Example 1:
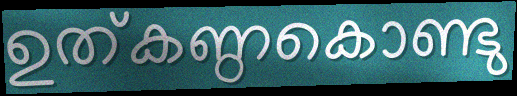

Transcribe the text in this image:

ഉത്കണ്ഠകൊണ്ടു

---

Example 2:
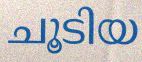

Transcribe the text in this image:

ചൂടിയ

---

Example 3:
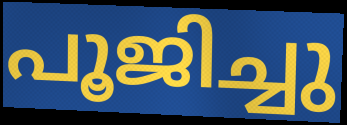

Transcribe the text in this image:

പൂജിച്ചു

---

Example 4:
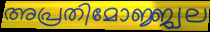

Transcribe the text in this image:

അപ്രതിമോജ്ജ്വല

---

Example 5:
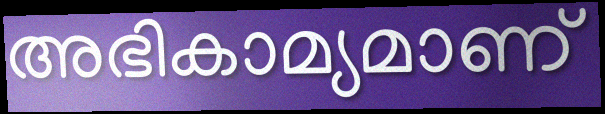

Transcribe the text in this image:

അഭികാമ്യമാണ്